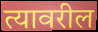
त्यावरील